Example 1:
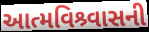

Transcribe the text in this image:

આત્મવિશ્ર્વાસની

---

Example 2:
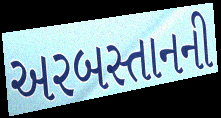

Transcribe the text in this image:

અરબસ્તાનની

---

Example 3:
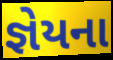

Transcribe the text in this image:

જ્ઞેયના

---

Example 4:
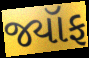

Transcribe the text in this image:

જ્યૉફ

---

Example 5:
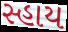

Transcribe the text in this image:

સ્હાય